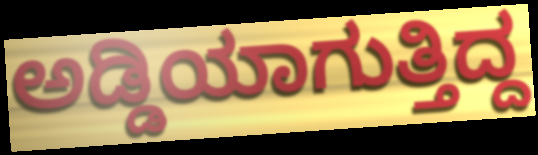
ಅಡ್ಡಿಯಾಗುತ್ತಿದ್ದ